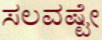
ಸಲವಷ್ಟೇ